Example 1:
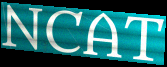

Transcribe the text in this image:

NCAT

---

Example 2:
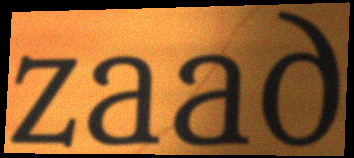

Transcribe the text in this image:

zaad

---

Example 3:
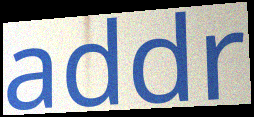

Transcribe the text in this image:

addr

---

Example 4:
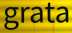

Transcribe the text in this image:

grata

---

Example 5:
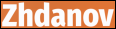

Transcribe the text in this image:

Zhdanov